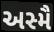
અસ્મૈ